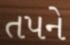
તપને